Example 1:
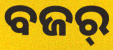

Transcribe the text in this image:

ବଜର୍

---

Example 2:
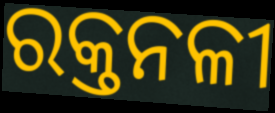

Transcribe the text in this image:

ରକ୍ତନଳୀ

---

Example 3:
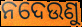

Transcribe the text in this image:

ନଦେଉଣୁ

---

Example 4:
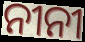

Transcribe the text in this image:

ନୀନୀ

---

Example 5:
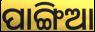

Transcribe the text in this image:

ପାଙ୍ଗିଆ